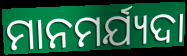
ମାନମର୍ଯ୍ୟଦା